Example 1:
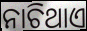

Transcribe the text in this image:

ନାଚିଥାଏ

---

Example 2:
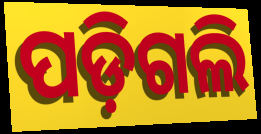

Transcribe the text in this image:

ପଡ଼ିଗଲି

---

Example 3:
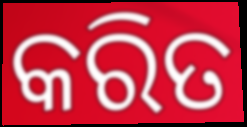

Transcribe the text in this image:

କରିତ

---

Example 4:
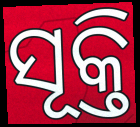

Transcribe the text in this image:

ସୂକ୍ତି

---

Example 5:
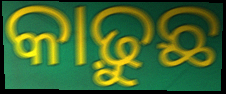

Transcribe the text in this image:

କାଢ଼ୁଛ